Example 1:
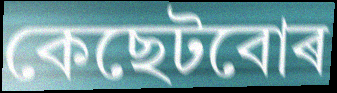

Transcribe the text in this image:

কেছেটবোৰ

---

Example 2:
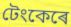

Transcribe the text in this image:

টেংকেৰে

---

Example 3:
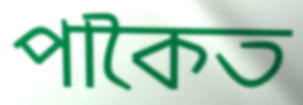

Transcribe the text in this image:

পাকৈত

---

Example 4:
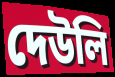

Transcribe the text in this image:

দেউলি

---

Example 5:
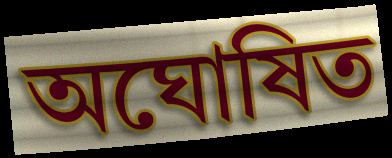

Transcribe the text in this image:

অঘোষিত